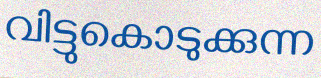
വിട്ടുകൊടുക്കുന്ന